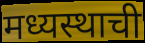
मध्यस्थाची